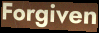
Forgiven